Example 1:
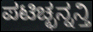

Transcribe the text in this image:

ಪಟಿಚ್ಛನ್ನನ್ತಿ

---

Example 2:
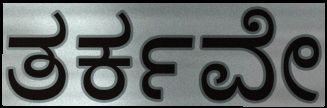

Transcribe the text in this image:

ತರ್ಕವೇ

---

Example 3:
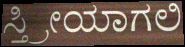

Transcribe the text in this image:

ಸ್ತ್ರೀಯಾಗಲಿ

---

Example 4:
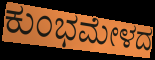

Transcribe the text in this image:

ಕುಂಭಮೇಳದ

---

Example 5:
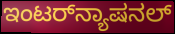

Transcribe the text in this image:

ಇಂಟರ್‌ನ್ಯಾಷನಲ್